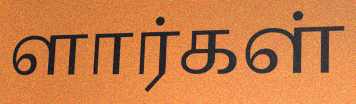
ளார்கள்